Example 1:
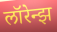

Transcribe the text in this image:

लॉरेन्झ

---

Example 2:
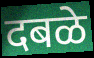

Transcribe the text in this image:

दबळे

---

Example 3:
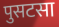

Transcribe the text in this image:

पुसटसा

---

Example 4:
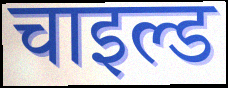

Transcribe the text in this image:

चाइल्ड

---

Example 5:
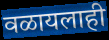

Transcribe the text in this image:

वळायलाही